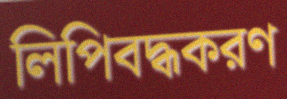
লিপিবদ্ধকরণ